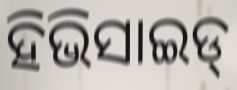
ହିଭିସାଇଡ୍